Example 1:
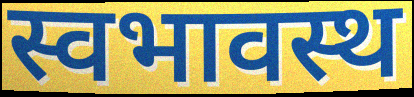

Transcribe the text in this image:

स्वभावस्थ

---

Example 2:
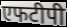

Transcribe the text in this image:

एफटीपी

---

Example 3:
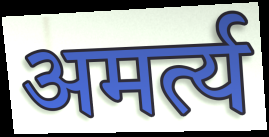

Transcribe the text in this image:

अमर्त्य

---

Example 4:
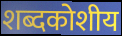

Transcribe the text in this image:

शब्दकोशीय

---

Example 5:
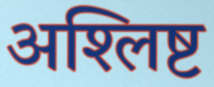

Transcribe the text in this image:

अश्लिष्ट